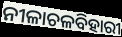
ନୀଳାଚଳବିହାରୀ